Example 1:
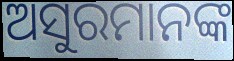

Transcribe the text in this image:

ଅସୁରମାନଙ୍କ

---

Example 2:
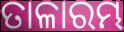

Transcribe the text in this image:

ତାଳାରମ୍ଭ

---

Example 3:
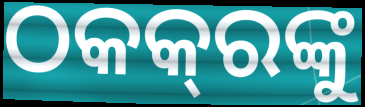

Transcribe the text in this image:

ଠକକ୍‌ରଙ୍କୁ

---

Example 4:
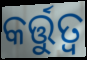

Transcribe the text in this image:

କର୍ତ୍ତୁତ୍ୱ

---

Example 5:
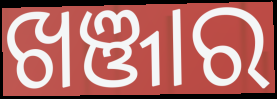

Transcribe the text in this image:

ଖଞ୍ଜାର